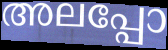
അലപ്പോ